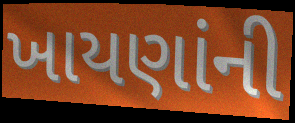
ખાયણાંની